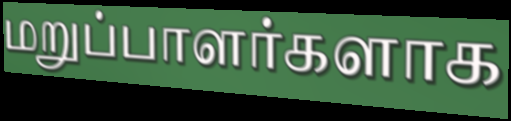
மறுப்பாளர்களாக